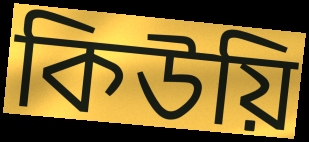
কিউয়ি